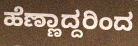
ಹೆಣ್ಣಾದ್ದರಿಂದ